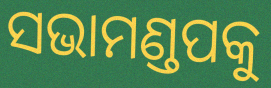
ସଭାମଣ୍ଡପକୁ